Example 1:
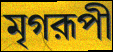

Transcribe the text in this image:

মৃগরূপী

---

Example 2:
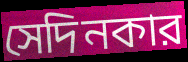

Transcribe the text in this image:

সেদিনকার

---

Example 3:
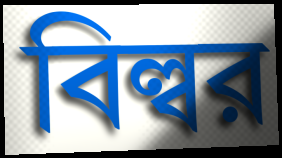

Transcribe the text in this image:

বিল্বর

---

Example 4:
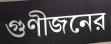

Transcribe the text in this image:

গুণীজনের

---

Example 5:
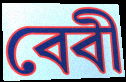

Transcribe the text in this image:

বেবী